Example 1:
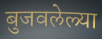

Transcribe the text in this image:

बुजवलेल्या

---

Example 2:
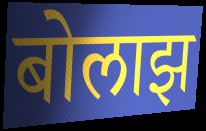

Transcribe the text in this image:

बोलाझ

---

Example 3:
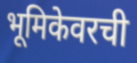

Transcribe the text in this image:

भूमिकेवरची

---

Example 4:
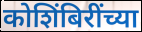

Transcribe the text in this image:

कोशिंबिरींच्या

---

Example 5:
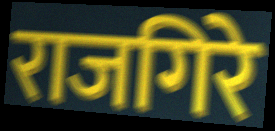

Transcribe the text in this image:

राजगिरे